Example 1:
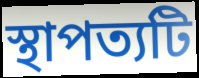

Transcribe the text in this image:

স্থাপত্যটি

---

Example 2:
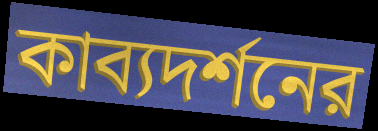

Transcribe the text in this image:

কাব্যদর্শনের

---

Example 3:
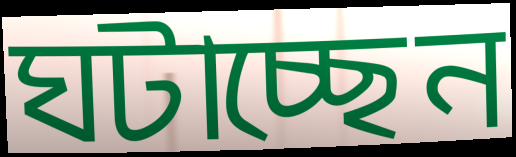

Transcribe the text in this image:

ঘটাচ্ছেন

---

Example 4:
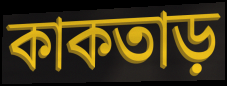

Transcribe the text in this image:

কাকতাড়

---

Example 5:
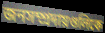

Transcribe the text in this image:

জনসম্প্রদায়গুলিকে